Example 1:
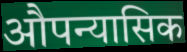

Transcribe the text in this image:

औपन्यासिक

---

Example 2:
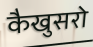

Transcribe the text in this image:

कैखुसरो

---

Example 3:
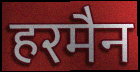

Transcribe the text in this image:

हरमैन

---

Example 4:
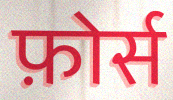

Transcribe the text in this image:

फ़ोर्स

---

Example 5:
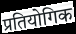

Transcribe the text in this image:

प्रतियोगिक